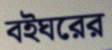
বইঘরের